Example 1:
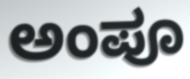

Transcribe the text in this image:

ಅಂಪೂ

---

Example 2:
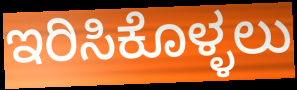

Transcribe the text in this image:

ಇರಿಸಿಕೊಳ್ಳಲು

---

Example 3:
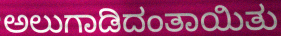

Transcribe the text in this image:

ಅಲುಗಾಡಿದಂತಾಯಿತು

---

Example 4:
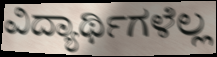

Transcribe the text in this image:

ವಿದ್ಯಾರ್ಥಿಗಳೆಲ್ಲ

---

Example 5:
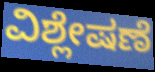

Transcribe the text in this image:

ವಿಶ್ಲೇಷಣೆ